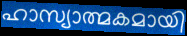
ഹാസ്യാത്മകമായി